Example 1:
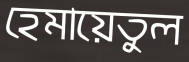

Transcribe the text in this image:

হেমায়েতুল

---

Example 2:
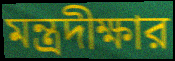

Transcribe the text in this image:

মন্ত্রদীক্ষার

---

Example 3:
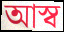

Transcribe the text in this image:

আস্ব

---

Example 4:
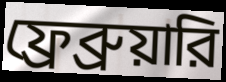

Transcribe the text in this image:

ফ্রেব্রুয়ারি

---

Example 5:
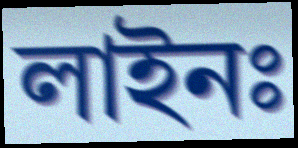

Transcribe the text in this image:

লাইনঃ